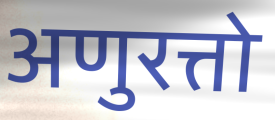
अणुरत्तो